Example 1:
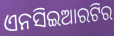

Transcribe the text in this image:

ଏନସିଇଆରଟିର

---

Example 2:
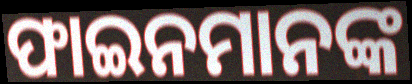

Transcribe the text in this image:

ଫାଇନମାନଙ୍କ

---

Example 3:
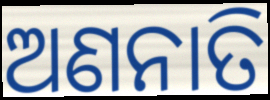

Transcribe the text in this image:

ଅଣନାତି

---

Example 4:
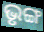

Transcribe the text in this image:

ଭୃଙ୍ଗ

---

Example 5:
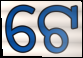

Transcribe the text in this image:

ଟେ